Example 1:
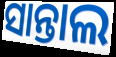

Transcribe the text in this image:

ସାନ୍ତାଲ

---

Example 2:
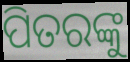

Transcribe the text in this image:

ପିତରଙ୍କୁ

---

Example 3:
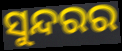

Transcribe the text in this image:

ସୁନ୍ଦରର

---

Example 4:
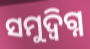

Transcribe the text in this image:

ସମୁଦ୍ବିଗ୍ନ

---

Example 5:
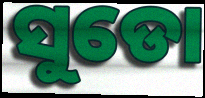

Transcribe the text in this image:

ସୁଡୋ